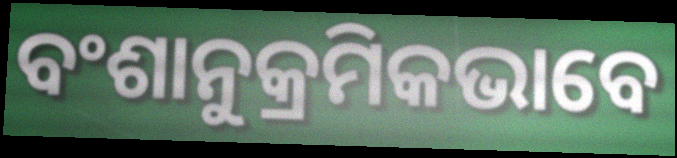
ବଂଶାନୁକ୍ରମିକଭାବେ